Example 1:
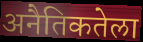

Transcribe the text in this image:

अनैतिकतेला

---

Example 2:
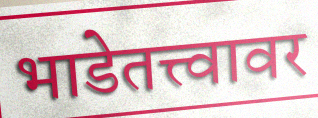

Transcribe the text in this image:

भाडेतत्त्वावर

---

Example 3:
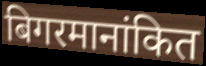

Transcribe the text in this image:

बिगरमानांकित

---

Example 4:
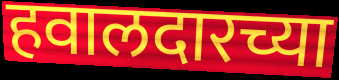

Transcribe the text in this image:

हवालदारच्या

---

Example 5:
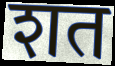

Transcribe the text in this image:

शत